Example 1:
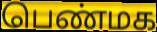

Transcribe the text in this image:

பெண்மக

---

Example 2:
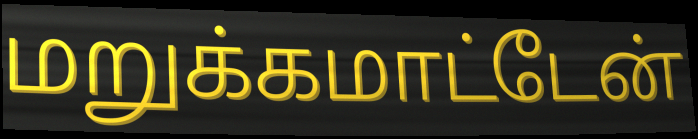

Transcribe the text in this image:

மறுக்கமாட்டேன்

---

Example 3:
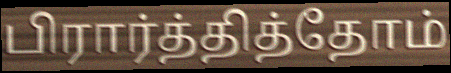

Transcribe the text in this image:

பிரார்த்தித்தோம்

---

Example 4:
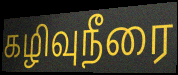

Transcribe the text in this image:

கழிவுநீரை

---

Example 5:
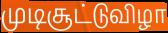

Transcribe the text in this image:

முடிசூட்டுவிழா